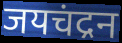
जयचंद्रन